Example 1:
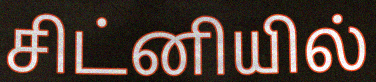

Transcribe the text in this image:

சிட்னியில்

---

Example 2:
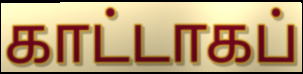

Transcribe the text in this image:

காட்டாகப்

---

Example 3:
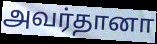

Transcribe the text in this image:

அவர்தானா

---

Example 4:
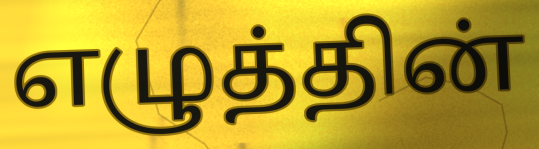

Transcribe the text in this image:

எழுத்தின்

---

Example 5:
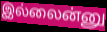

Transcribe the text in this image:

இல்லைன்னு